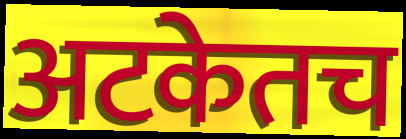
अटकेतच